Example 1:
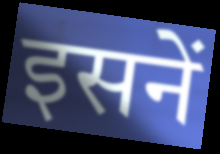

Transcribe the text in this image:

इसनें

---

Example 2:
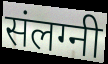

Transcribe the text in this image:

संलग्नी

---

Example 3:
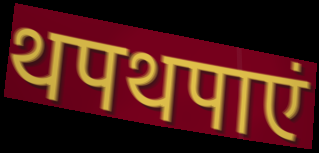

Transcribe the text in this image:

थपथपाएं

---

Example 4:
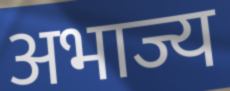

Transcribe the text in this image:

अभाज्य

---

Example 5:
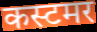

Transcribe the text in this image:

कस्‍टमर